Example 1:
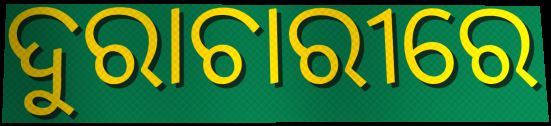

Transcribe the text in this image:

ଦୁରାଚାରୀରେ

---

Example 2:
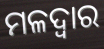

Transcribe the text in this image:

ମଳଦ୍ଵାର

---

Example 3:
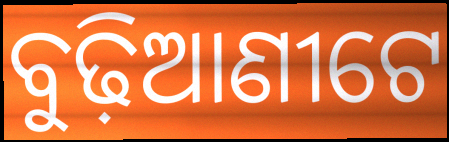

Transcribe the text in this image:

ବୁଢ଼ିଆଣୀଟେ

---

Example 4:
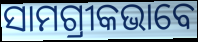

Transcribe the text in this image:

ସାମଗ୍ରୀକଭାବେ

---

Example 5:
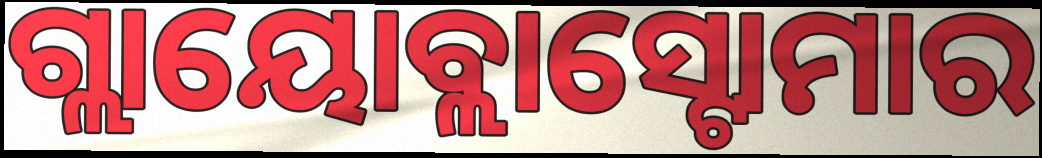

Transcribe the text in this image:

ଗ୍ଲାୟୋବ୍ଲାସ୍ଟୋମାର